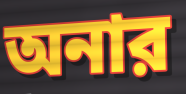
অনার